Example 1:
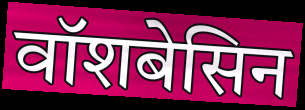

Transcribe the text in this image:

वॉशबेसिन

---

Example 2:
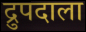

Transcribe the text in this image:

द्रुपदाला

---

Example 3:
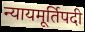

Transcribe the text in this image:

न्यायमूर्तिपदी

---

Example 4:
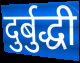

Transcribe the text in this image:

दुर्बुद्धी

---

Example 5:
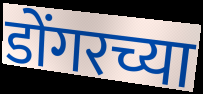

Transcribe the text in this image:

डोंगरच्या